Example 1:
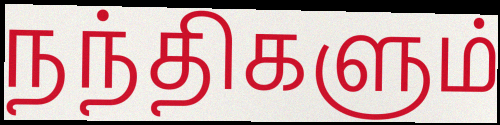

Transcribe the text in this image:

நந்திகளும்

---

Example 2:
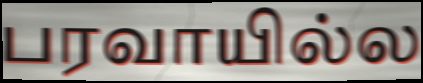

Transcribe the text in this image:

பரவாயில்ல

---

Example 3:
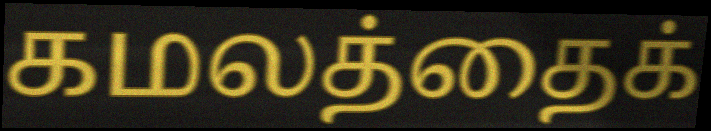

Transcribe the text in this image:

கமலத்தைக்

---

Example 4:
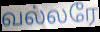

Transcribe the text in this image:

வல்லரே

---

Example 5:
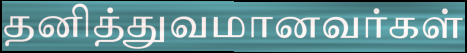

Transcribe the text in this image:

தனித்துவமானவர்கள்